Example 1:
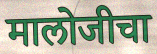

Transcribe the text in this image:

मालोजीचा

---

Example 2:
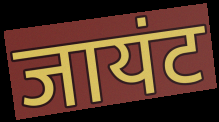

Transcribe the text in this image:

जायंट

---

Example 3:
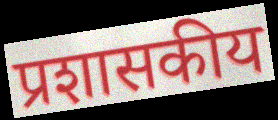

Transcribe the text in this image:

प्रशासकीय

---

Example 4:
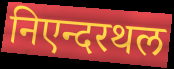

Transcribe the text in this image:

निएन्दरथल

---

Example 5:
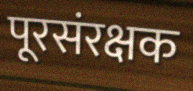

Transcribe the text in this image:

पूरसंरक्षक